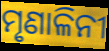
ମୃଣାଳିନୀ